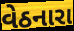
વેઠનારા